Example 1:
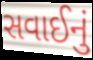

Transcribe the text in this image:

સવાઈનું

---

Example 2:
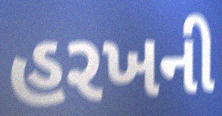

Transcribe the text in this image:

હરખની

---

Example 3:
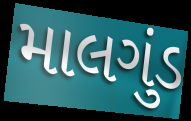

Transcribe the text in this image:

માલગુંડ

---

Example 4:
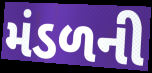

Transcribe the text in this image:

મંડળની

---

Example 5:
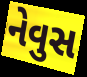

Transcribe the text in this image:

નેવુસ